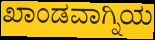
ಖಾಂಡವಾಗ್ನಿಯ